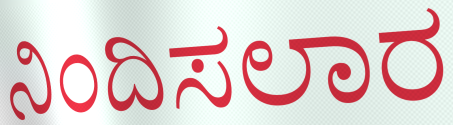
ನಿಂದಿಸಲಾರ